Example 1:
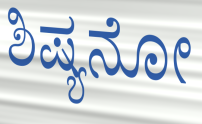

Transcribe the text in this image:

ಶಿಷ್ಯನೋ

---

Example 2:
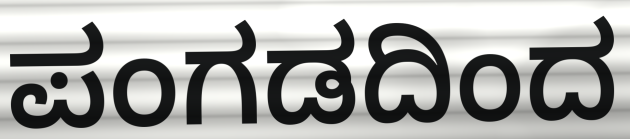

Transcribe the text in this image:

ಪಂಗಡದಿಂದ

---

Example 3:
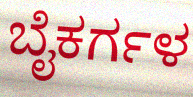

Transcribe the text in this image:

ಬೈಕರ್ಗಳ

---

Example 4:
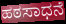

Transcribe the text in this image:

ಹಠಸಾಧನೆ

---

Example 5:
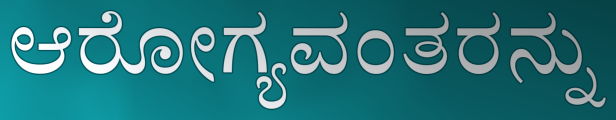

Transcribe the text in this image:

ಆರೋಗ್ಯವಂತರನ್ನು